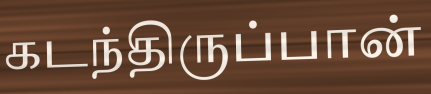
கடந்திருப்பான்